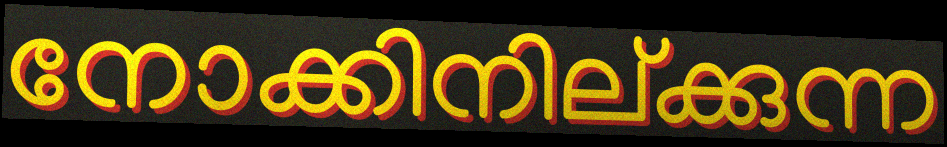
നോക്കിനില്ക്കുന്ന